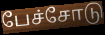
பேச்சோடு